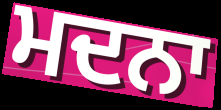
ਮਦਨਾ